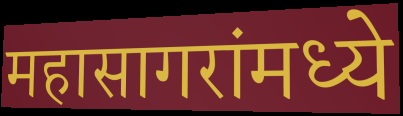
महासागरांमध्ये